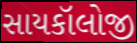
સાયકૉલોજી